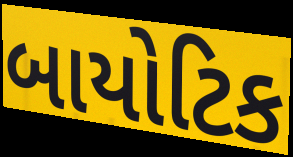
બાયોટિક